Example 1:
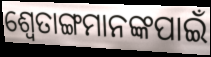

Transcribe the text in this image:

ଶ୍ୱେତାଙ୍ଗମାନଙ୍କପାଇଁ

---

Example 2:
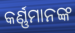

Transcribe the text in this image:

କର୍ଣ୍ଣମାନଙ୍କ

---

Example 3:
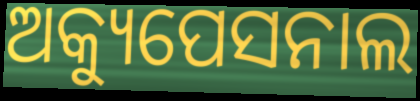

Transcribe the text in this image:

ଅକ୍ୟୁପେସନାଲ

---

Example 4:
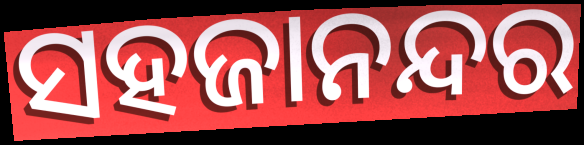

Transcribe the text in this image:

ସହଜାନନ୍ଦର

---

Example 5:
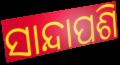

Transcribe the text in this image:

ସାନ୍ଦାପଶି